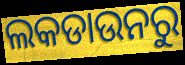
ଲକଡାଉନରୁ